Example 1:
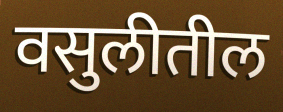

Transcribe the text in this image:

वसुलीतील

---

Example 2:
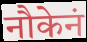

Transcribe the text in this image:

नौकेनं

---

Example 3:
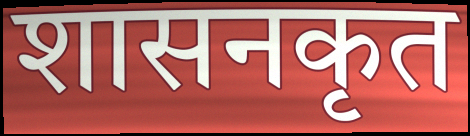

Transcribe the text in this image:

शासनकृत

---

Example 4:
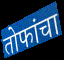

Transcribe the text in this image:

तोफांचा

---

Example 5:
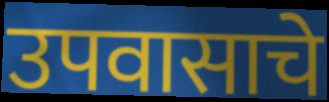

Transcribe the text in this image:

उपवासाचे